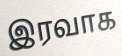
இரவாக